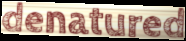
denatured